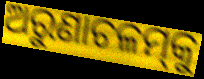
ଅରୁଣାଚଳମ୍‌କୁ